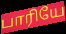
பாரியே